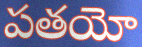
పతయో